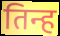
तिन्ह